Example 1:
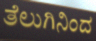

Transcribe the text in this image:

ತೆಲುಗಿನಿಂದ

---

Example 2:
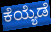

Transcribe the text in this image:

ಕೆಯ್ಯೆಡೆ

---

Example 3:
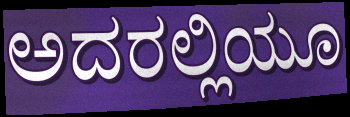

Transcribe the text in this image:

ಅದರಲ್ಲಿಯೂ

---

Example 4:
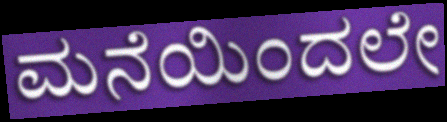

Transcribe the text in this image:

ಮನೆಯಿಂದಲೇ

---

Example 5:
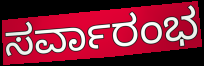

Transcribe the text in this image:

ಸರ್ವಾರಂಭ